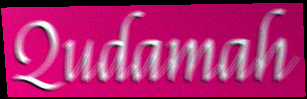
Qudamah